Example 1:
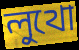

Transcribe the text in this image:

লুথো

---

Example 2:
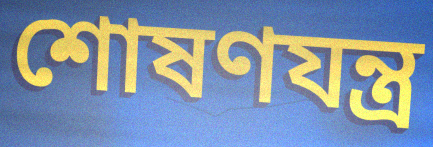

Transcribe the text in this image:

শোষণযন্ত্র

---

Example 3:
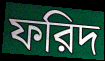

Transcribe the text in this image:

ফরিদ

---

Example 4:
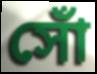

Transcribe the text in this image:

সোঁ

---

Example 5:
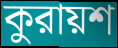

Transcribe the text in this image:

কুরায়শ